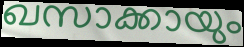
ഖസാക്കായും